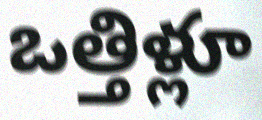
ఒత్తిళ్లూ